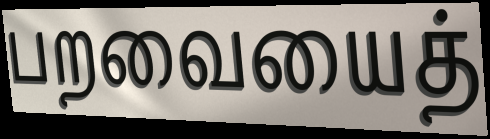
பறவையைத்